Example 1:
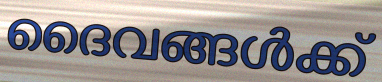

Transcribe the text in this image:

ദൈവങ്ങൾക്ക്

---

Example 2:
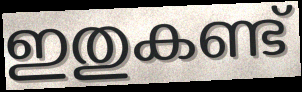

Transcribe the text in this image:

ഇതുകണ്ട്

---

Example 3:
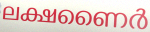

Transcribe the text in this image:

ലക്ഷണൈർ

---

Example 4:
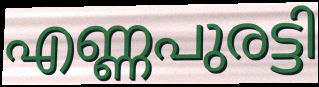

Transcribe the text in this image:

എണ്ണപുരട്ടി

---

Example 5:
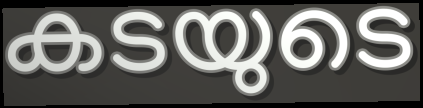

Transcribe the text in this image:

കടയുടെ